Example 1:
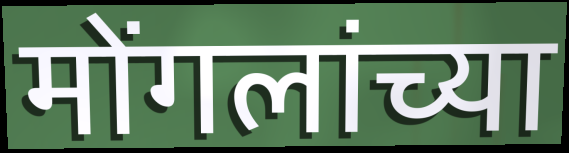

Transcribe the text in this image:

मोंगलांच्या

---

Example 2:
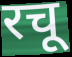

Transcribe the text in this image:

रचू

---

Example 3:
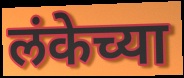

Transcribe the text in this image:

लंकेच्या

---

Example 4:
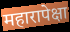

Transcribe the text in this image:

महारापेक्षा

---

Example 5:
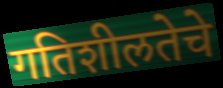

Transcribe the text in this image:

गतिशीलतेचे